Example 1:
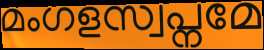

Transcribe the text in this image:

മംഗളസ്വപ്നമേ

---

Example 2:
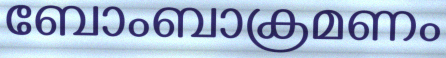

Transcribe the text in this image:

ബോംബാക്രമണം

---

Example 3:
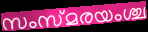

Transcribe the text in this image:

സംസ്മരയംശ്ച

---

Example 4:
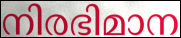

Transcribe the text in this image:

നിരഭിമാന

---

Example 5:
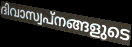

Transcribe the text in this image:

ദിവാസ്വപ്നങ്ങളുടെ